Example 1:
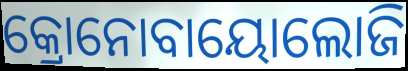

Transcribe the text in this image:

କ୍ରୋନୋବାୟୋଲୋଜି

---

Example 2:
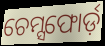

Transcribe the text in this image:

ଚେମ୍ସଫୋର୍ଡ଼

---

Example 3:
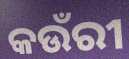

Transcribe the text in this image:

କଉଁରୀ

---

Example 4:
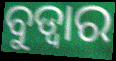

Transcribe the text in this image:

ବୁଡ୍ୱାର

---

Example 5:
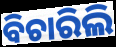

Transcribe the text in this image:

ବିଚାରିଲି